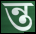
ন্ত